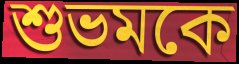
শুভমকে